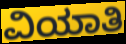
ವಿಯಾತಿ